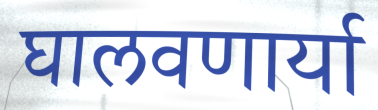
घालवणार्या